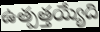
ఉత్పత్తయ్యేది